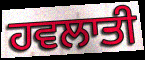
ਹਵਲਾਤੀ